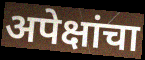
अपेक्षांचा